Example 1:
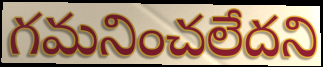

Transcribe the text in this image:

గమనించలేదని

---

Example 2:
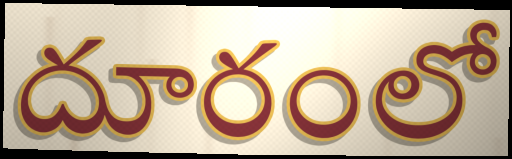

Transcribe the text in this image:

దూరంలో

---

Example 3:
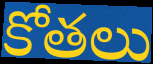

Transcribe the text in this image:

కోతలు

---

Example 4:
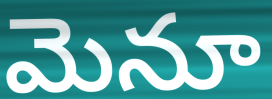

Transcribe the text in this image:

మెనూ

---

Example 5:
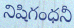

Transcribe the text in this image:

నిషిగంధనీ